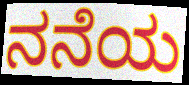
ನನೆಯ